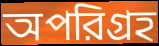
অপরিগ্রহ